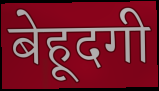
बेहूदगी